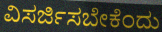
ವಿಸರ್ಜಿಸಬೇಕೆಂದು